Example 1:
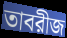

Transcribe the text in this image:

তাবরীজ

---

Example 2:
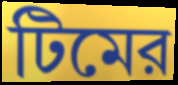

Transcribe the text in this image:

টিমের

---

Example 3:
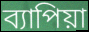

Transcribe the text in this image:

ব্যাপিয়া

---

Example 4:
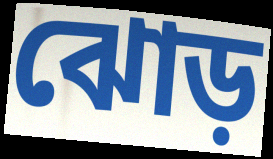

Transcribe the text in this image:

ঝোড়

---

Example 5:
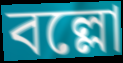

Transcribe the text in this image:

বল্লো